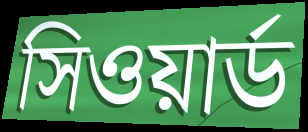
সিওয়ার্ড